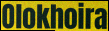
Olokhoira